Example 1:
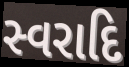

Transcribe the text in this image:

સ્વરાદિ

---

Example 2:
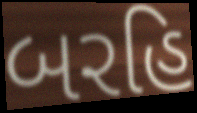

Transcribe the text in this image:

બરહિ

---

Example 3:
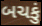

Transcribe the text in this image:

બચકું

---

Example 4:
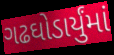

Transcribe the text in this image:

ગઢઘોડાર્યુંમાં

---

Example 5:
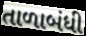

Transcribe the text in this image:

તાળાબંધી